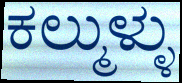
ಕಲ್ಮುಳ್ಳು